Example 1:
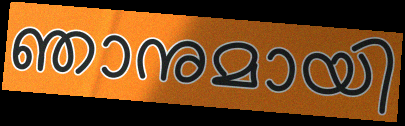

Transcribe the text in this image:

ഞാനുമായി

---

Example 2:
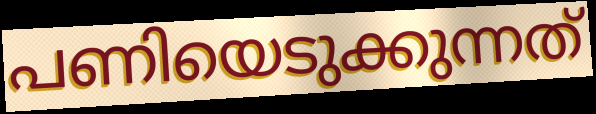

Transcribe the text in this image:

പണിയെടുക്കുന്നത്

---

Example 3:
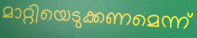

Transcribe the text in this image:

മാറ്റിയെടുക്കണമെന്ന്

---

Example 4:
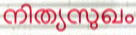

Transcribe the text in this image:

നിത്യസുഖം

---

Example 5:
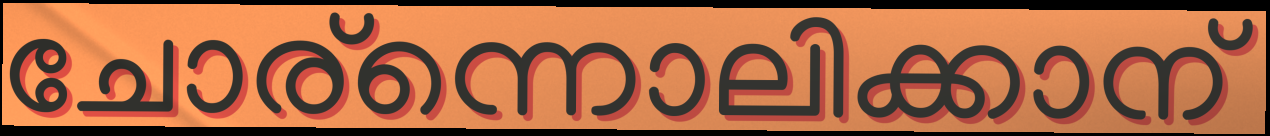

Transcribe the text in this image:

ചോര്ന്നൊലിക്കാന്